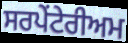
ਸਰਪੇਂਟੇਰੀਅਮ